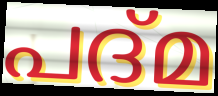
പദ്മ